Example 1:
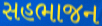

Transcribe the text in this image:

સહભાજન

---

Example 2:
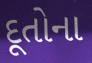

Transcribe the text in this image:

દૂતોના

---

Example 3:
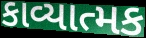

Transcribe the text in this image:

કાવ્યાત્મક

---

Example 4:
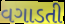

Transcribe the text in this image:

વગાડતી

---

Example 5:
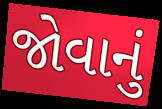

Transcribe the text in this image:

જોવાનું